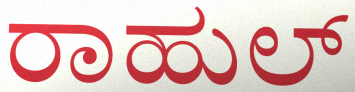
ರಾಹುಲ್